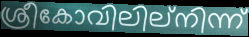
ശ്രീകോവിലില്നിന്ന്